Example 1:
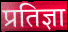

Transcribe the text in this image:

प्रतिज्ञा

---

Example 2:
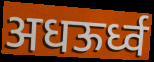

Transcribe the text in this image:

अधऊर्ध्व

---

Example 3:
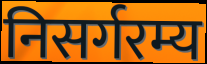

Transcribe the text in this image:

निसर्गरम्य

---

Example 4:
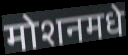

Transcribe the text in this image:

मोशनमधे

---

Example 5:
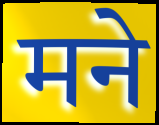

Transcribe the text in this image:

मने